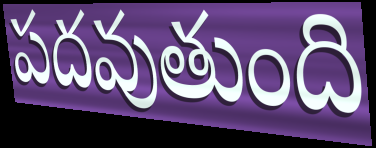
పదవుతుంది